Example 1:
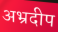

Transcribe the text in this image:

अभ्रदीप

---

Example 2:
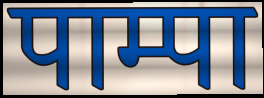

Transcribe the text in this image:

पाम्पा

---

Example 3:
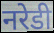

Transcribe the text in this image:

नरेडी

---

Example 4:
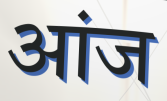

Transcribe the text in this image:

आंज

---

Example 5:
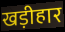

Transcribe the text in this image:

खड़ीहार